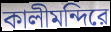
কালীমন্দিরে